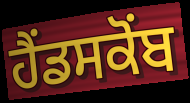
ਹੈਂਡਸਕੋਂਬ